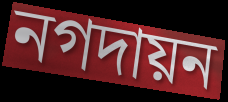
নগদায়ন